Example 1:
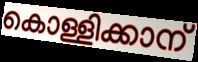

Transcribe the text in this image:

കൊള്ളിക്കാന്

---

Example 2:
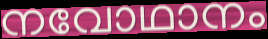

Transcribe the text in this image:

നവോഥാനം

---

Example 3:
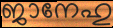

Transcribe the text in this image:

ജാനേഹു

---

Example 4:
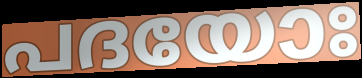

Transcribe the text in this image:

പദയോഃ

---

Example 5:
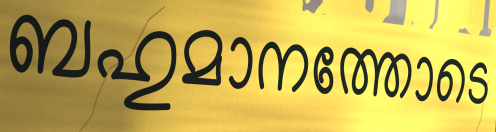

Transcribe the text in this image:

ബഹുമാനത്തോടെ